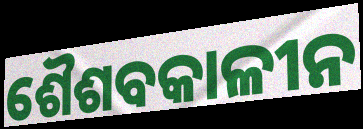
ଶୈଶବକାଳୀନ